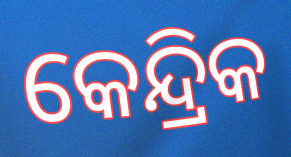
କେନ୍ଦ୍ରିକ